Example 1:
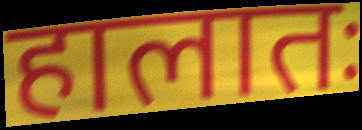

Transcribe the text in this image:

हालातः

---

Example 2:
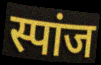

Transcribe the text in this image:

स्पांज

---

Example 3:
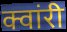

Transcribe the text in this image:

क्वांरी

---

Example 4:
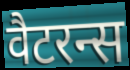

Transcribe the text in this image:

वैटरन्स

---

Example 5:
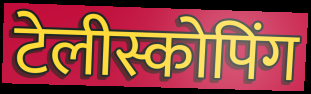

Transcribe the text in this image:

टेलीस्कोपिंग